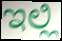
ಇಲ್ಲಿ